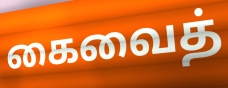
கைவைத்